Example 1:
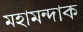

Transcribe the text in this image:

মহামন্দাক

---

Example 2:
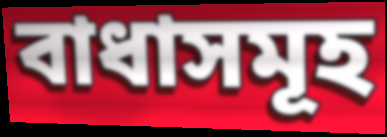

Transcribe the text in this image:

বাধাসমূহ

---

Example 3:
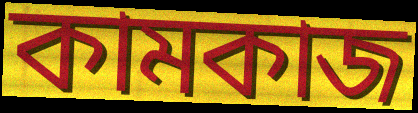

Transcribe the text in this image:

কামকাজ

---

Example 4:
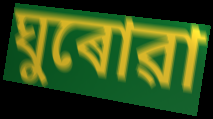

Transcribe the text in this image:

ঘুৰোৱা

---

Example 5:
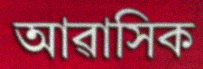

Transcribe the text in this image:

আৱাসিক